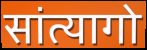
सांत्यागो